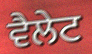
ਵੈਲੇਟ